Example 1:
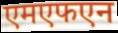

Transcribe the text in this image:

एमएफएन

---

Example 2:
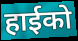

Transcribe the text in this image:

हाईको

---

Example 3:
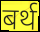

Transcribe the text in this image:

बर्थ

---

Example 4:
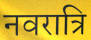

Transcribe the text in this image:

नवरात्रि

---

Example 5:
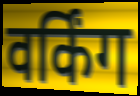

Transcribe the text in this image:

वर्किंग